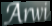
Arwi